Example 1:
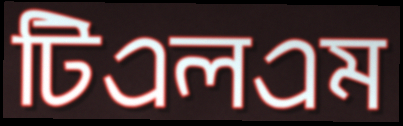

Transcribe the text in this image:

টিএলএম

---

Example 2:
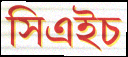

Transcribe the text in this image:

সিএইচ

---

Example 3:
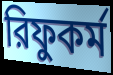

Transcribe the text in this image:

রিফুকর্ম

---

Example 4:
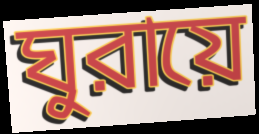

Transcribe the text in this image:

ঘুরায়ে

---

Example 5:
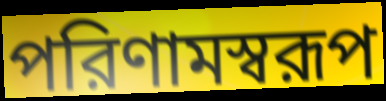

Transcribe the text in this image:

পরিণামস্বরূপ